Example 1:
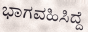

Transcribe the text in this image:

ಭಾಗವಹಿಸಿದ್ದೆ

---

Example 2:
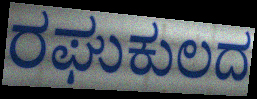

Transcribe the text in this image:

ರಘುಕುಲದ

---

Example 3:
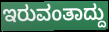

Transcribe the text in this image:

ಇರುವಂತಾದ್ದು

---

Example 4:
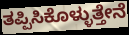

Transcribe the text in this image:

ತಪ್ಪಿಸಿಕೊಳ್ಳುತ್ತೇನೆ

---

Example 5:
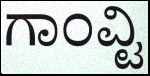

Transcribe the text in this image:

ಗಾಂವ್ಟಿ